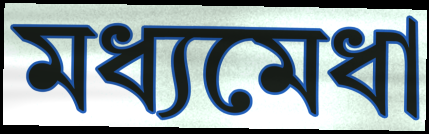
মধ্যমেধা